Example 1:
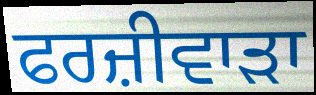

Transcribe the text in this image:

ਫਰਜ਼ੀਵਾਡ਼ਾ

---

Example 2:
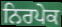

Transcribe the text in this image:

ਨਿਰਪੇਕ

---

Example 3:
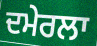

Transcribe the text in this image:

ਦਮੇਰਲਾ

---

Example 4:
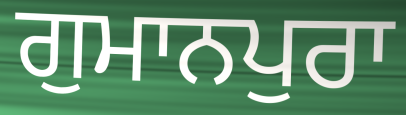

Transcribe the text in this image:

ਗੁਮਾਨਪੁਰਾ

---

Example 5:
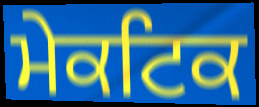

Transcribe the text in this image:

ਮੇਕਟਿਕ